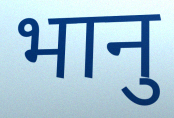
भानु